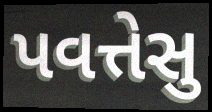
પવત્તેસુ